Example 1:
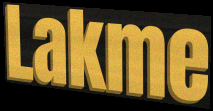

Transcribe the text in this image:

Lakme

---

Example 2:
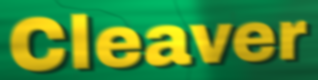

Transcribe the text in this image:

Cleaver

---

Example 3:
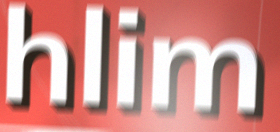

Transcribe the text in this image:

hlim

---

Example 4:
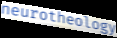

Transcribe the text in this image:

neurotheology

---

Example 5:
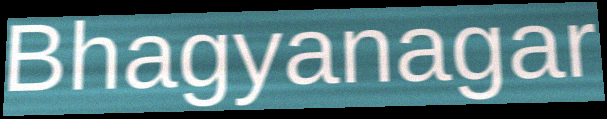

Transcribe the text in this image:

Bhagyanagar